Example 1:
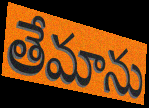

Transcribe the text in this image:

తేమాను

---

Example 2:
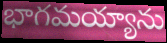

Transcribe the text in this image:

భాగమయ్యాను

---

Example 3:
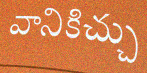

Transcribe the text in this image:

వానికిచ్చు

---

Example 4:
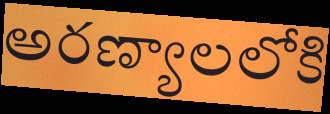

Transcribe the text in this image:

అరణ్యాలలోకి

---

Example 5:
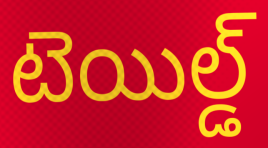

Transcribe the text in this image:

టెయిల్డ్